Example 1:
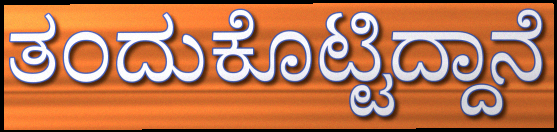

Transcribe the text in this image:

ತಂದುಕೊಟ್ಟಿದ್ದಾನೆ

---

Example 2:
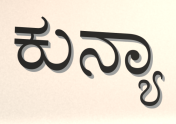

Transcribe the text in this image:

ಕುನ್ಯಾ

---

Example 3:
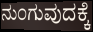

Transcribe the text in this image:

ನುಂಗುವುದಕ್ಕೆ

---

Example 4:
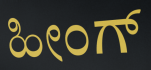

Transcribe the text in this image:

ಹೀಂಗ್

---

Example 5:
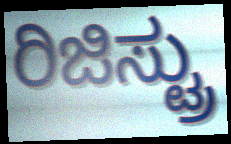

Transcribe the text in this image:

ರಿಜಿಸ್ಟ್ರು